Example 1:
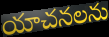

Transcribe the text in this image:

యాచనలను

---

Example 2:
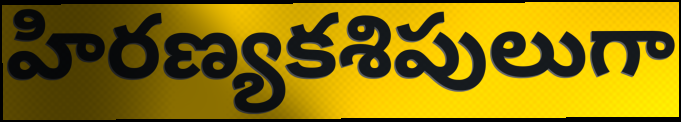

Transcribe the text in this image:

హిరణ్యకశిపులుగా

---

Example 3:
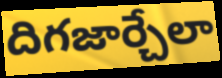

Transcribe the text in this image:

దిగజార్చేలా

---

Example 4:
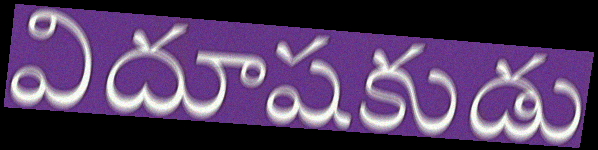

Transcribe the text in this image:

విదూషకుడు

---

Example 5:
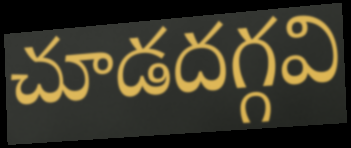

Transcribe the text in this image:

చూడదగ్గవి